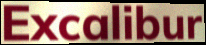
Excalibur